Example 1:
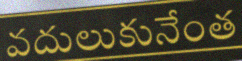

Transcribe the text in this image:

వదులుకునేంత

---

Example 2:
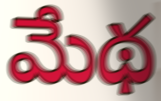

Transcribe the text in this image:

మేథ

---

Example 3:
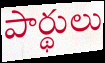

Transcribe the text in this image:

పార్థులు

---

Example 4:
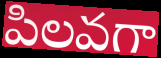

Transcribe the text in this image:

పిలవగా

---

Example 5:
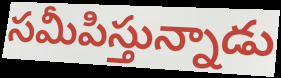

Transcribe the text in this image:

సమీపిస్తున్నాడు